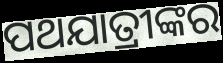
ପଥଯାତ୍ରୀଙ୍କର